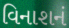
વિનાશનં